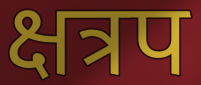
क्षत्रप